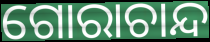
ଗୋରାଚାନ୍ଦ